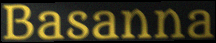
Basanna